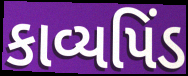
કાવ્યપિંડ